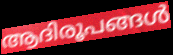
ആദിരൂപങ്ങൾ